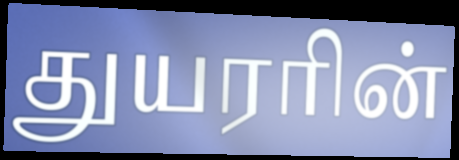
துயரரின்